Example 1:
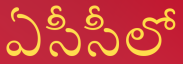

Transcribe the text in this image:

ఏసీసీలో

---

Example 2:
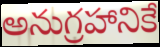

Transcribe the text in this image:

అనుగ్రహానికే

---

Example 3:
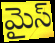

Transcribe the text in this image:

మైస్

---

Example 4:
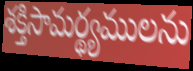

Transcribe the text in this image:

శక్తిసామర్థ్యములను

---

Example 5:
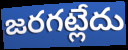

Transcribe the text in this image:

జరగట్లేదు